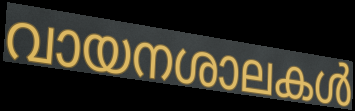
വായനശാലകൾ